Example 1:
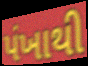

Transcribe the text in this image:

પંખાથી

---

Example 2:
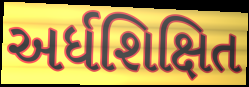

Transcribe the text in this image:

અર્ધશિક્ષિત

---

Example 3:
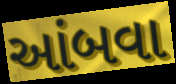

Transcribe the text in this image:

આંબવા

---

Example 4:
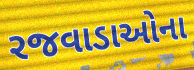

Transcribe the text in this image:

રજવાડાઓના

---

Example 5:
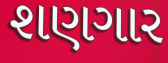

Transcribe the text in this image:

શણગાર